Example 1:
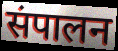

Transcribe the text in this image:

संपालन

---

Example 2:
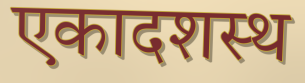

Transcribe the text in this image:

एकादशस्थ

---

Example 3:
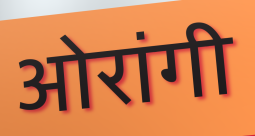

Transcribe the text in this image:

ओरांगी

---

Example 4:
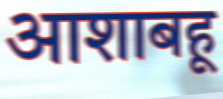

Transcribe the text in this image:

आशाबहू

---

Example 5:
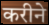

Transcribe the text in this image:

करीने